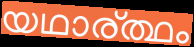
യഥാര്ത്ഥം